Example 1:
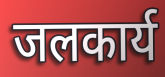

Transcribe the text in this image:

जलकार्य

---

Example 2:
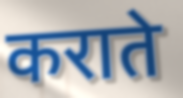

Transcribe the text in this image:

कराते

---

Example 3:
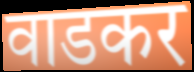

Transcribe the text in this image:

वाडकर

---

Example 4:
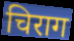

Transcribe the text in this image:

चिराग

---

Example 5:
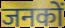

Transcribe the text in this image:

जनकों